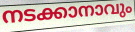
നടക്കാനാവും